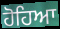
ਹੋਹਿਆ